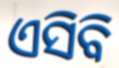
ଏସିବି